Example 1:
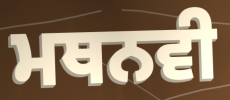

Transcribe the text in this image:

ਮਥਨਵੀ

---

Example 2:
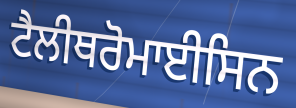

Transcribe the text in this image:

ਟੈਲੀਥਰੋਮਾਈਸਿਨ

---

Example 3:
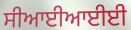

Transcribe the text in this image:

ਸੀਆਈਆਈਈ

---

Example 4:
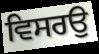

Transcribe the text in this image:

ਵਿਸਰਉ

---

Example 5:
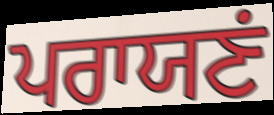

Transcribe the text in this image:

ਪਰਾਯਣਂ